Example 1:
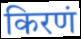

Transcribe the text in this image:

किरणं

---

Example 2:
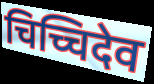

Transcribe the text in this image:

चिच्चिदेव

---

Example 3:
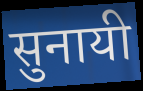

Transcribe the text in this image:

सुनायी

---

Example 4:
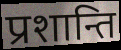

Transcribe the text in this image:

प्रशान्ति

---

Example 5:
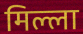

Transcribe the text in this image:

मिल्ला